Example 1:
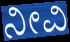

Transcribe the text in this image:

ನೀವಿ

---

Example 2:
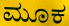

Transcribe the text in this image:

ಮೂಕ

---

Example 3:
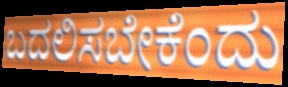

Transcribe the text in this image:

ಬದಲಿಸಬೇಕೆಂದು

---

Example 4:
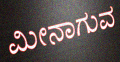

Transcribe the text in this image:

ಮೀನಾಗುವ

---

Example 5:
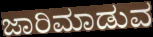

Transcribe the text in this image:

ಜಾರಿಮಾಡುವ